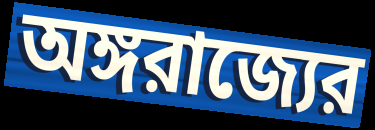
অঙ্গরাজ্যের